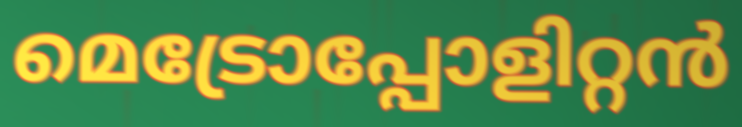
മെട്രോപ്പോളിറ്റൻ